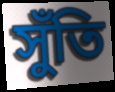
সুঁতি